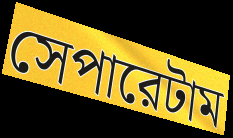
সেপারেটাম